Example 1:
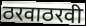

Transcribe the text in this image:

ठरवाठरवी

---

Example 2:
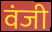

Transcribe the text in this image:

वंजी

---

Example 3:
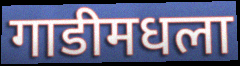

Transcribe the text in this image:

गाडीमधला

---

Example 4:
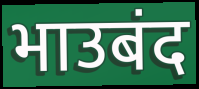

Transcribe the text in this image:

भाउबंद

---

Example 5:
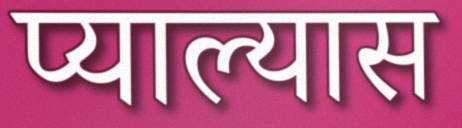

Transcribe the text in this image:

प्याल्यास